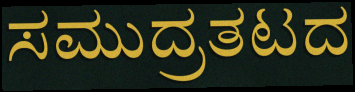
ಸಮುದ್ರತಟದ